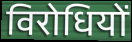
विरोधियों